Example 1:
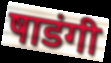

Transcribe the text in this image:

षाडंगी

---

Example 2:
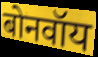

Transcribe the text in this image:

बोनवॉय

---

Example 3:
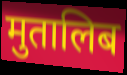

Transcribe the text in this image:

मुतालिब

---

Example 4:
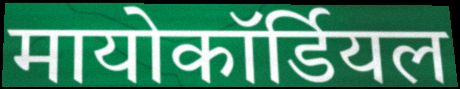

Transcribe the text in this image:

मायोकॉर्डियल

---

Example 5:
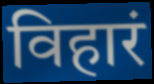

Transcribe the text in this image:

विहारं